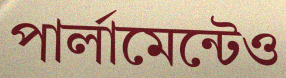
পার্লামেন্টেও